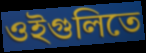
ওইগুলিতে